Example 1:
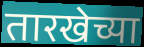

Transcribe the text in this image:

तारखेच्या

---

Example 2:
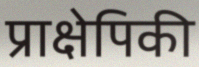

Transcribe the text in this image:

प्राक्षेपिकी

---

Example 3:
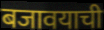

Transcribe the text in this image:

बजावयाची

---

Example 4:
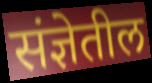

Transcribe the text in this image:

संज्ञेतील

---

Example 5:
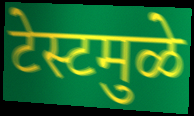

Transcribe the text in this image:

टेस्टमुळे